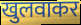
खुलवाकर